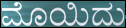
ಮೊಯಿದು